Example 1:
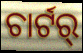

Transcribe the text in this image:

ଚାର୍ଟର୍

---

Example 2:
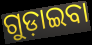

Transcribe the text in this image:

ଗୁଡ଼ାଇବା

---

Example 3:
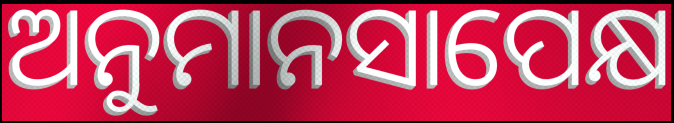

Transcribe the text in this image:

ଅନୁମାନସାପେକ୍ଷ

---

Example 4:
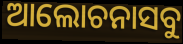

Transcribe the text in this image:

ଆଲୋଚନାସବୁ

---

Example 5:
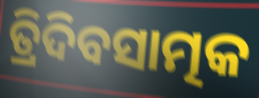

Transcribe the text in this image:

ତ୍ରିଦିବସାତ୍ମକ